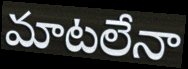
మాటలేనా